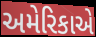
અમેરિકાએ